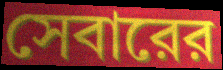
সেবারের